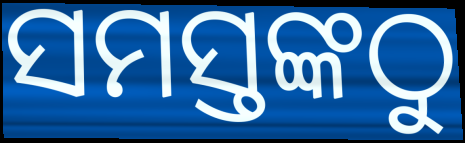
ସମସ୍ତଙ୍କଠୁ